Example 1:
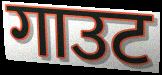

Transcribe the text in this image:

गाउट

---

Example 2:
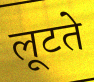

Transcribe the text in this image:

लूटते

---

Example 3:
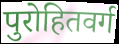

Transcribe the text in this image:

पुरोहितवर्ग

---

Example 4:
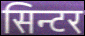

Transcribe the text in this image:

सिन्टर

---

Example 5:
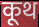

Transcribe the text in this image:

कूथ